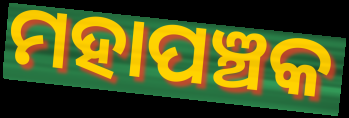
ମହାପଞ୍ଚକ